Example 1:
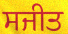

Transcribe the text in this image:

ਸਜੀਤ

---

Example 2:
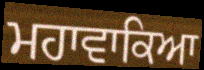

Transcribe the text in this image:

ਮਹਾਵਾਕਿਆ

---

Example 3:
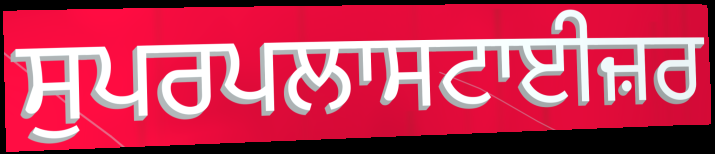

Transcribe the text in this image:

ਸੁਪਰਪਲਾਸਟਾਈਜ਼ਰ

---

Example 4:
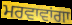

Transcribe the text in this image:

ਮਰਵਾਵਾਂਗਾ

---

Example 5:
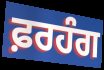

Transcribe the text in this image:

ਫ਼ਰਹੰਗ